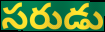
సరుడు